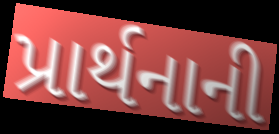
પ્રાર્થનાની